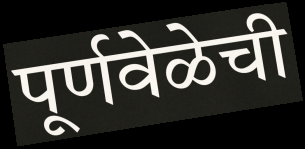
पूर्णवेळेची